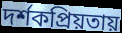
দর্শকপ্রিয়তায়